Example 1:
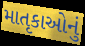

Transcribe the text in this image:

માતૃકાઓનું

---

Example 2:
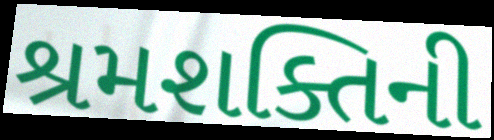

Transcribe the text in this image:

શ્રમશક્તિની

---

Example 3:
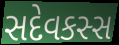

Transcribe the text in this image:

સદેવકસ્સ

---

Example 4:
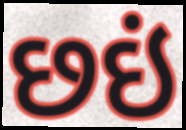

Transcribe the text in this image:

છઇં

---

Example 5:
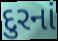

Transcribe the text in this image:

દુરનાં